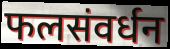
फलसंवर्धन